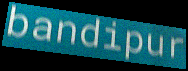
bandipur